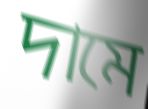
দামে